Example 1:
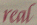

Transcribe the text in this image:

real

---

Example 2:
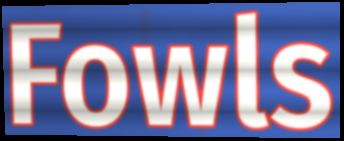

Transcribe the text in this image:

Fowls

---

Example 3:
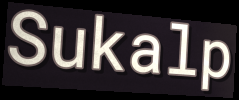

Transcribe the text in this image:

Sukalp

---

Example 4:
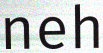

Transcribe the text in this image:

neh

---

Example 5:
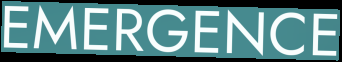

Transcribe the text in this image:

EMERGENCE